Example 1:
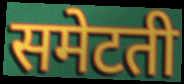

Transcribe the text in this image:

समेटती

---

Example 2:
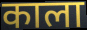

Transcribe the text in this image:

काला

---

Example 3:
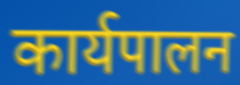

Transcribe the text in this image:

कार्यपालन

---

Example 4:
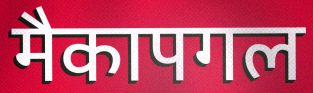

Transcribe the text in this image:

मैकापगल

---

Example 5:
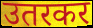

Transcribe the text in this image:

उतरकर